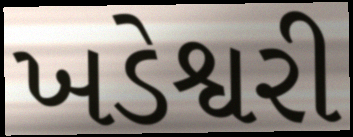
ખડેશ્વરી